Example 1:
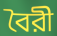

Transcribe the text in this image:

বৈরী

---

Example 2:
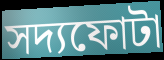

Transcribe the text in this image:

সদ্যফোটা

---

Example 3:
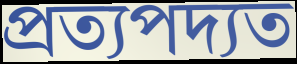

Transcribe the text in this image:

প্রত্যপদ্যত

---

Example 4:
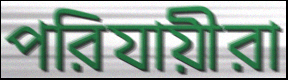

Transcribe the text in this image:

পরিযায়ীরা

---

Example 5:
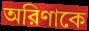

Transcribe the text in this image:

অরিণাকে